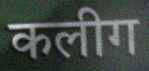
कलीग